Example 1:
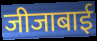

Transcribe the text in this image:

जीजाबाई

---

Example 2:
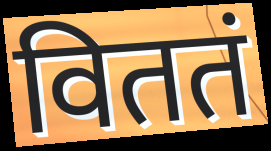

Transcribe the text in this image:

विततं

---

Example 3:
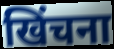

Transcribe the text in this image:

खिंचना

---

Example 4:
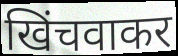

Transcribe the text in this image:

खिंचवाकर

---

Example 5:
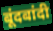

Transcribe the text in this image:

बूंदबांदी